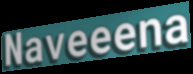
Naveeena